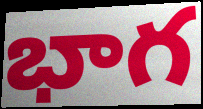
భాగ